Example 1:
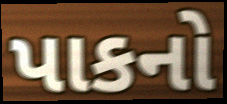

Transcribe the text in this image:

પાકનો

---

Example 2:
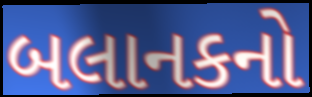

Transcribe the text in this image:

બલાનકનો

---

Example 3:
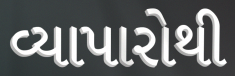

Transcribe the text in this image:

વ્યાપારોથી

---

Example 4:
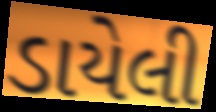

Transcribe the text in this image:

ડાયેલી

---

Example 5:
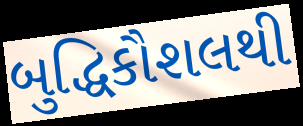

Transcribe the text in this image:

બુદ્ધિકૌશલથી